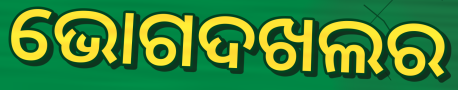
ଭୋଗଦଖଲର